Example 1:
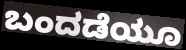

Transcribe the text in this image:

ಬಂದಡೆಯೂ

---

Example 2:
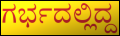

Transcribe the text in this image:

ಗರ್ಭದಲ್ಲಿದ್ದ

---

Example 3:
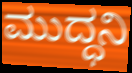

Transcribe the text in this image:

ಮುದ್ಧನಿ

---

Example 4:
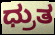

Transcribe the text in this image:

ಧ್ರುತ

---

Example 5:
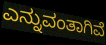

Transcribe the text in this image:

ಎನ್ನುವಂತಾಗಿವೆ